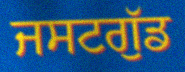
ਜਸਟਗੁੱਡ